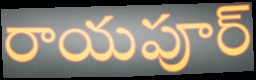
రాయపూర్